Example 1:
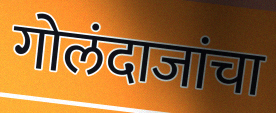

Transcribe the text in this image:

गोलंदाजांचा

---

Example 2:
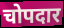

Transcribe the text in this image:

चोपदार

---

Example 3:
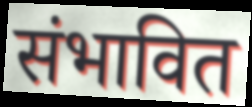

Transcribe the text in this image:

संभावित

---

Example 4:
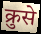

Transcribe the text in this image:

क्रुसे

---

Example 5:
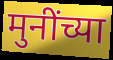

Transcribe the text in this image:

मुनींच्या